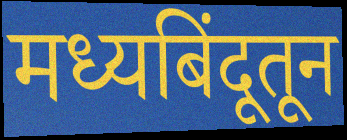
मध्यबिंदूतून